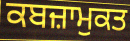
ਕਬਜ਼ਾਮੁਕਤ